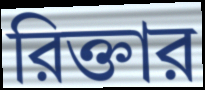
রিক্তার